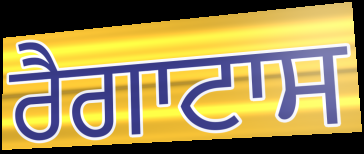
ਰੈਗਾਟਾਸ